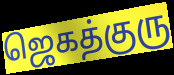
ஜெகத்குரு